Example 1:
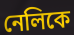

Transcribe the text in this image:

নেলিকে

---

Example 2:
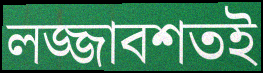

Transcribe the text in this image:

লজ্জাবশতই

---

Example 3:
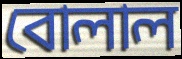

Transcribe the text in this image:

বোলাল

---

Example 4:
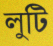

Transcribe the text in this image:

লুটি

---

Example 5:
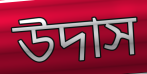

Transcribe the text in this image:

উদাস